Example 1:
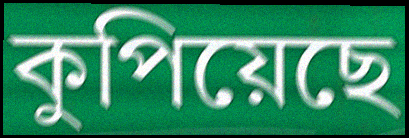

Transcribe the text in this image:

কুপিয়েছে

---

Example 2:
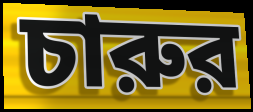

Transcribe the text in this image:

চারুর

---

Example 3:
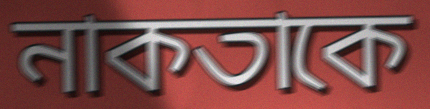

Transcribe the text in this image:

নাকতাকে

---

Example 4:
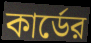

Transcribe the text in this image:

কার্ডের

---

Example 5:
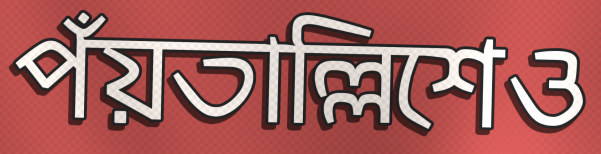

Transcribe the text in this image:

পঁয়তাল্লিশেও